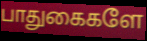
பாதுகைகளே